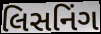
લિસનિંગ